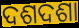
ଦଶଦଶା